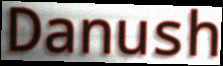
Danush